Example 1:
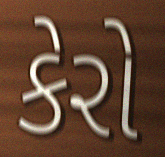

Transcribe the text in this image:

કેરો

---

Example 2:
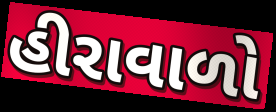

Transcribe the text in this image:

હીરાવાળો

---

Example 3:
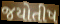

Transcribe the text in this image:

જયોતીષ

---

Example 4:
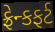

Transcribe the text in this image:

ફ્રેન્કફર્ટ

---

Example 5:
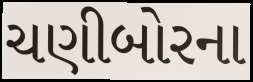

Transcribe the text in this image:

ચણીબોરના